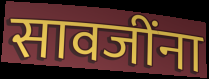
सावजींना